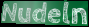
Nudeln